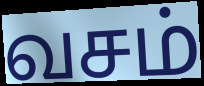
வசம்